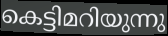
കെട്ടിമറിയുന്നു